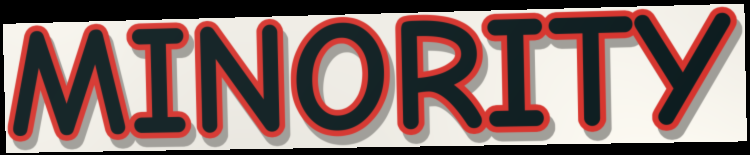
MINORITY